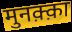
मुनक़्क़ा